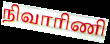
நிவாரிணி